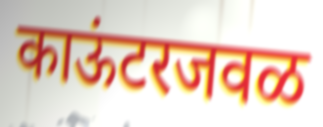
काऊंटरजवळ